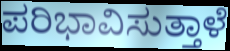
ಪರಿಭಾವಿಸುತ್ತಾಳೆ